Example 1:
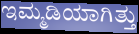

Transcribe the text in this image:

ಇಮ್ಮಡಿಯಾಗಿತ್ತು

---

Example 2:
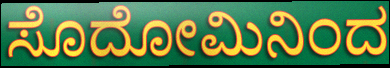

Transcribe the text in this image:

ಸೊದೋಮಿನಿಂದ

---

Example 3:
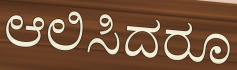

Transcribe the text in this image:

ಆಲಿಸಿದರೂ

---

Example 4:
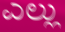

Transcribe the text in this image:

ಎಲ್ಲು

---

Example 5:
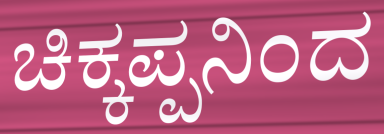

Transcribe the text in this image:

ಚಿಕ್ಕಪ್ಪನಿಂದ